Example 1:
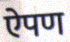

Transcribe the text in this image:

ऐपण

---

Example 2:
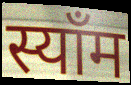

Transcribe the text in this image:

स्याँम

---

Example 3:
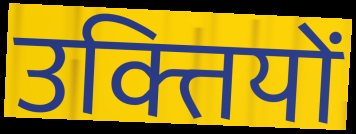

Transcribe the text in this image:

उक्तियों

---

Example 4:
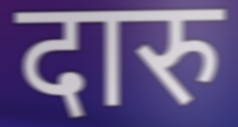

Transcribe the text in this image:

दारु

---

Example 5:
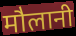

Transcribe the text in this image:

मौलानी